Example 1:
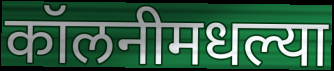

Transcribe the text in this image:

कॉलनीमधल्या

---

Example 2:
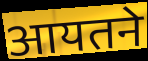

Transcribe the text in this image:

आयतने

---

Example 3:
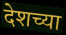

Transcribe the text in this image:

देशच्या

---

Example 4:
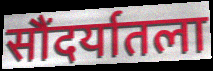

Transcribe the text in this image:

सौंदर्यातला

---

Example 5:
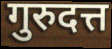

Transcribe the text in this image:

गुरुदत्त